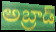
అబ్రాడ్